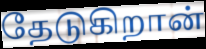
தேடுகிறான்